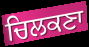
ਚਿਲਕਣਾ